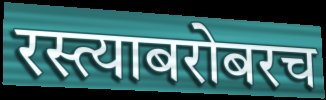
रस्त्याबरोबरच